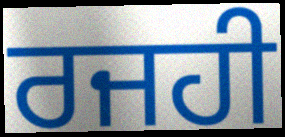
ਰਜਹੀ